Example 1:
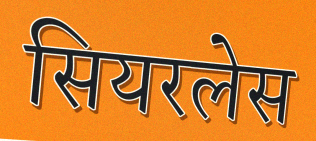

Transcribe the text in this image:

सियरलेस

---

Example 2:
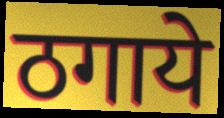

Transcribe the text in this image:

ठगाये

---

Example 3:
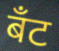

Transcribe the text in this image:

बँट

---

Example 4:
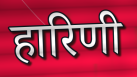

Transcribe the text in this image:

हारिणी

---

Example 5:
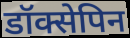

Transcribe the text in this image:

डॉक्सेपिन